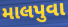
માલપુવા